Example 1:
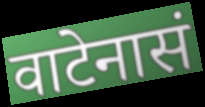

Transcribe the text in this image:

वाटेनासं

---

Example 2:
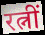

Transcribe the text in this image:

रत्नीं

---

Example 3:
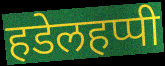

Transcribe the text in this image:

हडेलहप्पी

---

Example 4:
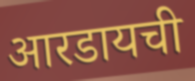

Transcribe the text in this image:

आरडायची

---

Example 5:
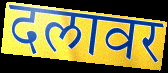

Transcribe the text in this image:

दलावर